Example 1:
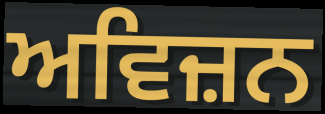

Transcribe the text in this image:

ਅਵਿਜ਼ਨ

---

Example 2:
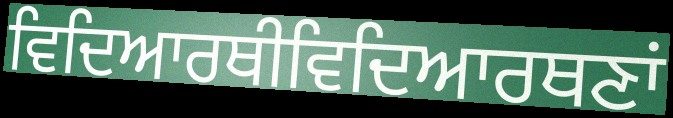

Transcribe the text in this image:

ਵਿਦਿਆਰਥੀਵਿਦਿਆਰਥਣਾਂ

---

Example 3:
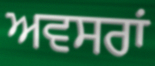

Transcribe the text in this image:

ਅਵਸਰਾਂ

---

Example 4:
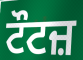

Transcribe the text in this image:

ਟੌਟਜ਼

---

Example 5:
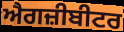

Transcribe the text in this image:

ਐਗਜ਼ੀਬੀਟਰ